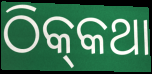
ଠିକ୍‌କଥା